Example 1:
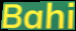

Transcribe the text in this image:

Bahi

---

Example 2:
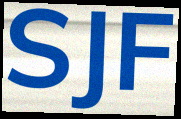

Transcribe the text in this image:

SJF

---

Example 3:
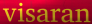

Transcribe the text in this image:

visaran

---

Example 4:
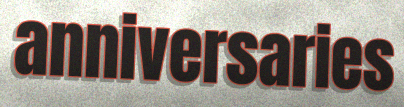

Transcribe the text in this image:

anniversaries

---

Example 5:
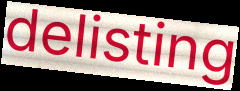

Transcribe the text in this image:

delisting